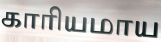
காரியமாய